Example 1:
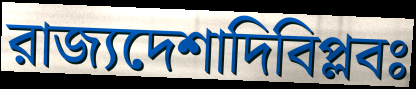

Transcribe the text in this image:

রাজ্যদেশাদিবিপ্লবঃ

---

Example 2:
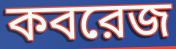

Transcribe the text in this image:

কবরেজ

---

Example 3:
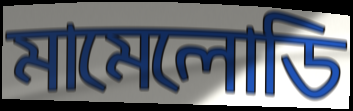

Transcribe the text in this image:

মামেলোডি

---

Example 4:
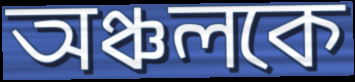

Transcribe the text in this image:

অঞ্চলকে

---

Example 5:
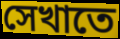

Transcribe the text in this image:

সেখাতে